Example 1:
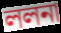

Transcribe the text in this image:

ললনা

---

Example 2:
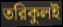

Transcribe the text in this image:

তরিকুলই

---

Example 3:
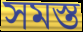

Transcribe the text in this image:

সমস্ত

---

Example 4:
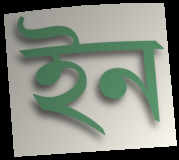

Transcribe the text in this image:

ইন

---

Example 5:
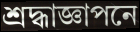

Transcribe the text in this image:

শ্রদ্ধাজ্ঞাপনে